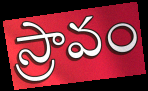
స్రావం